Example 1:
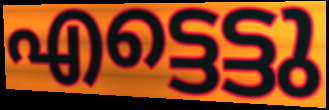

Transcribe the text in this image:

എട്ടെട്ടു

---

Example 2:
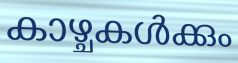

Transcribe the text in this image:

കാഴ്ചകൾക്കും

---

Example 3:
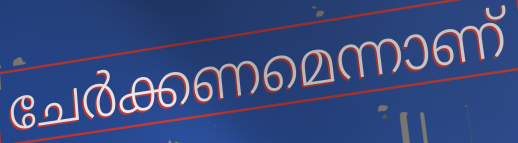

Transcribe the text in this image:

ചേർക്കണമെന്നാണ്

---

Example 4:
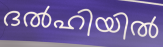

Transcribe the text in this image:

ദൽഹിയിൽ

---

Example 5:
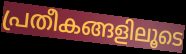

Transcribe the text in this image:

പ്രതീകങ്ങളിലൂടെ